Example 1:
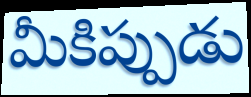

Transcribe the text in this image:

మీకిప్పుడు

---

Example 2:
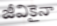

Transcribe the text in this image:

జీవికైనా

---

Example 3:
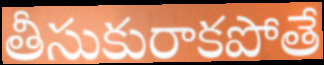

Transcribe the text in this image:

తీసుకురాకపోతే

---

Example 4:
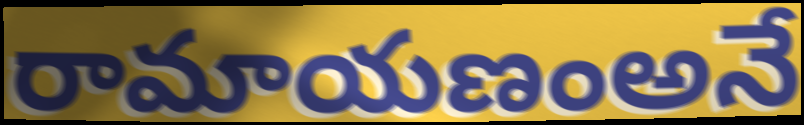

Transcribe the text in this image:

రామాయణంఅనే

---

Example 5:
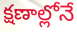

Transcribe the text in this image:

క్షణాల్లోనే